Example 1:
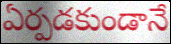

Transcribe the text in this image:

ఏర్పడకుండానే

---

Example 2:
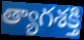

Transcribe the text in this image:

త్యాగశక్తి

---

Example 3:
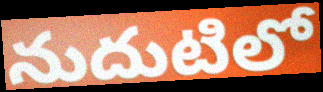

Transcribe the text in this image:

నుదుటిలో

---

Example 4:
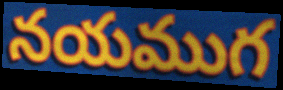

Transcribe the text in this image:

నయముగ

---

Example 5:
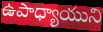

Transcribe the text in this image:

ఉపాధ్యాయుని